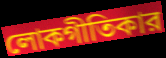
লোকগীতিকার